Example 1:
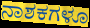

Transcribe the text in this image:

ನಾಶಕಗಳೂ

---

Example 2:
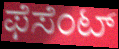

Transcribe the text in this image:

ಫೆಸೆಂಟ್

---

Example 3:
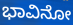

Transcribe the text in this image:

ಭಾವಿನೋ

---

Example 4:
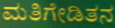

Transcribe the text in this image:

ಮತಿಗೇಡಿತನ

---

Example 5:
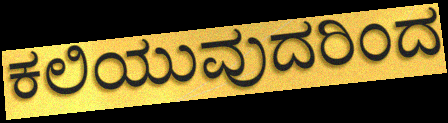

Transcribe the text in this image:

ಕಲಿಯುವುದರಿಂದ